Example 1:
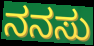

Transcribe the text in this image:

ನನಸು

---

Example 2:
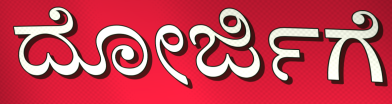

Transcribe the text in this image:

ದೋರ್ಜಿಗೆ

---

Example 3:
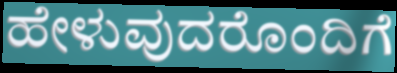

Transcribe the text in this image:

ಹೇಳುವುದರೊಂದಿಗೆ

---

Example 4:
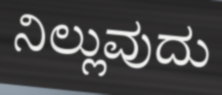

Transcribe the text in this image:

ನಿಲ್ಲುವುದು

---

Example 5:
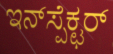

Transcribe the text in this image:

ಇನ್‌ಸ್ಪೆಕ್ಟರ್